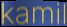
kamil